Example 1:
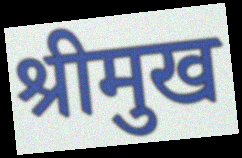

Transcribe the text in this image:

श्रीमुख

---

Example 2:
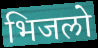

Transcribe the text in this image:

भिजलो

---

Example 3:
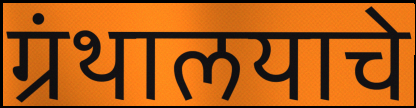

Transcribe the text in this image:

ग्रंथालयाचे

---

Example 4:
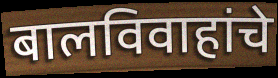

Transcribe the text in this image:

बालविवाहांचे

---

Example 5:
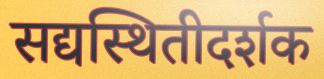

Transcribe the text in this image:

सद्यस्थितीदर्शक